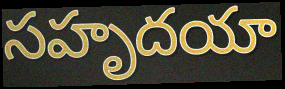
సహృదయా